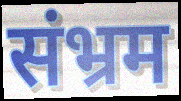
संभ्रम